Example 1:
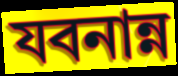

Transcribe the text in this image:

যবনান্ন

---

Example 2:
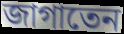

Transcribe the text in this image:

জাগাতেন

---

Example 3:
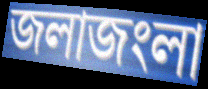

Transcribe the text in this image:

জলাজংলা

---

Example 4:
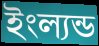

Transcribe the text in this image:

ইংল্যন্ড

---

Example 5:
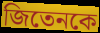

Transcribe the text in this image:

জিতেনকে